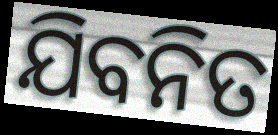
ଯିବନିତ